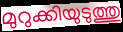
മുറുക്കിയുടുത്തു